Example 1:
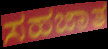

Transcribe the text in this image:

ಸಹಜಾತ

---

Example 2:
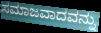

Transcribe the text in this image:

ಸಮಾಜವಾದವನ್ನು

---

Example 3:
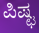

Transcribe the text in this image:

ಪಿಷ್ಟ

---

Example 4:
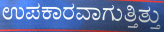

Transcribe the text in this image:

ಉಪಕಾರವಾಗುತ್ತಿತ್ತು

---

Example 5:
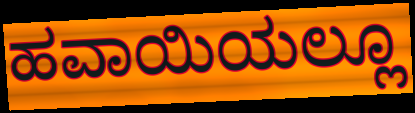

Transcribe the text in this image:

ಹವಾಯಿಯಲ್ಲೂ